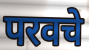
परवचे